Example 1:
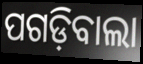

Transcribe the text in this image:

ପଗଡ଼ିବାଲା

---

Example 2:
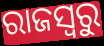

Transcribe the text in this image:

ରାଜସ୍ବରୁ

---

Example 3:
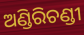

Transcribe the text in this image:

ଅଣ୍ଡିରିଚଣ୍ଡୀ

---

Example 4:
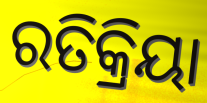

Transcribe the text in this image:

ରତିକ୍ରିୟା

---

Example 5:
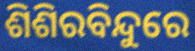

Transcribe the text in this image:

ଶିଶିରବିନ୍ଦୁରେ